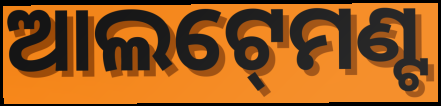
ଆଲଟ୍‍ମେଣ୍ଟ